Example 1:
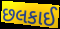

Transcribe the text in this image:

છલકાઈ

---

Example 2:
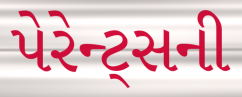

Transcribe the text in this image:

પેરેન્ટ્સની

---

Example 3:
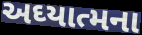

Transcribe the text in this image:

અઘ્યાત્મના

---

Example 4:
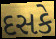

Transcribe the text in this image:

દસકે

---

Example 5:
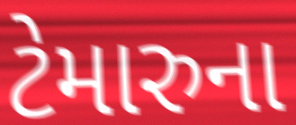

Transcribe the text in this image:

ટેમારુના